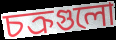
চক্রগুলো